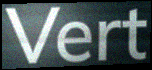
Vert